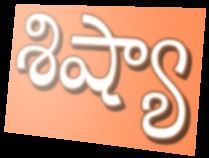
శిష్యా